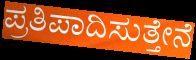
ಪ್ರತಿಪಾದಿಸುತ್ತೇನೆ